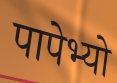
पापेभ्यो